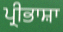
ਪ੍ਰੀਭਾਸ਼ਾ